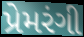
પ્રેમરંગી